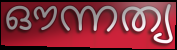
ഔന്നത്യ